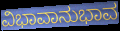
ವಿಭಾವಾನುಭಾವ